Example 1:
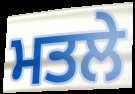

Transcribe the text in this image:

ਮਤਲੇ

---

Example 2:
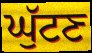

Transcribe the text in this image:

ਘੁੱਟਣ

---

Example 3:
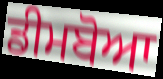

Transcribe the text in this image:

ਡੀਮਬੋਆ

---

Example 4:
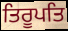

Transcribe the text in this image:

ਤਿਰੂਪਤਿ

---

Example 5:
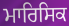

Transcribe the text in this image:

ਮਾਰਿਸਿਕ